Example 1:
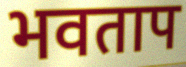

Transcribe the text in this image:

भवताप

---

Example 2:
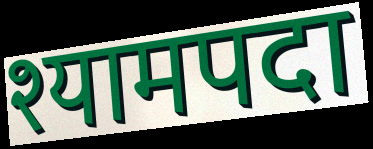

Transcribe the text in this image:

श्यामपदा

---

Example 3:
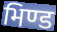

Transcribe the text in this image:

भिण्ड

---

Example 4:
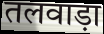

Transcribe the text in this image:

तलवाड़ा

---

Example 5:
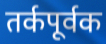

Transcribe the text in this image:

तर्कपूर्वक